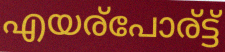
എയര്പോര്ട്ട്